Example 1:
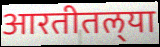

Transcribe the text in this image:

आरतीतल्या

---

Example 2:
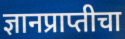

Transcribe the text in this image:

ज्ञानप्राप्तीचा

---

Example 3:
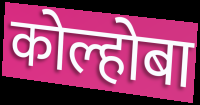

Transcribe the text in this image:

कोल्होबा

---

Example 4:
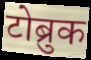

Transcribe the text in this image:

टोब्रुक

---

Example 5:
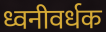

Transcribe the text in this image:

ध्वनीवर्धक